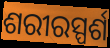
ଶରୀରସ୍ପର୍ଶ